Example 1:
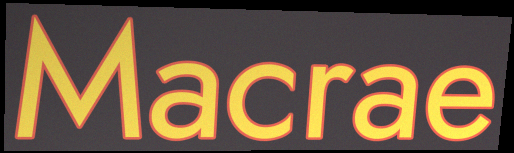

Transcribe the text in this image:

Macrae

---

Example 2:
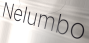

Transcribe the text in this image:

Nelumbo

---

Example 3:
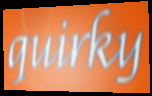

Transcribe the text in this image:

quirky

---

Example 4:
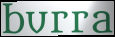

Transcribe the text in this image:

burra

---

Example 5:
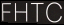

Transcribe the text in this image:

FHTC